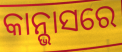
କାନ୍ଭାସରେ